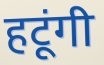
हटूंगी